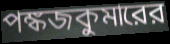
পঙ্কজকুমারের